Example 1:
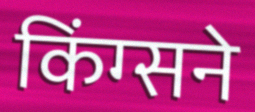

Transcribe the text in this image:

किंग्सने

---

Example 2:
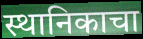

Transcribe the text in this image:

स्थानिकाचा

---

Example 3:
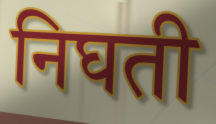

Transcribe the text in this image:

निघती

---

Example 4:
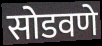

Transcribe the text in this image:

सोडवणे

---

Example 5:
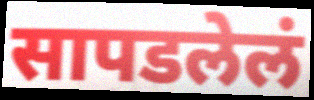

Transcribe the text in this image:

सापडलेलं